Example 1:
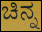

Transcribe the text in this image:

ಚಿನ್ನ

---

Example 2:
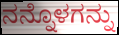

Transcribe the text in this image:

ನನ್ನೊಳಗನ್ನು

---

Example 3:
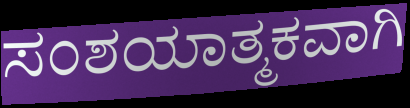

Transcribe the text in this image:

ಸಂಶಯಾತ್ಮಕವಾಗಿ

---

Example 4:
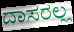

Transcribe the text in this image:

ದಾಸರಲ್ಲ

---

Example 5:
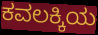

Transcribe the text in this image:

ಕವಲಕ್ಕಿಯ